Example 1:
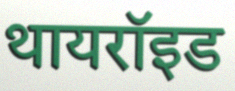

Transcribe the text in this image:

थायरॉइड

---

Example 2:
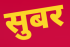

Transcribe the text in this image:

सुबर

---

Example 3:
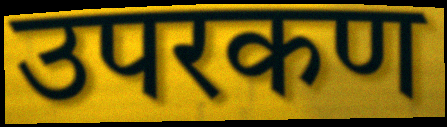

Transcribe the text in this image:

उपरकण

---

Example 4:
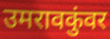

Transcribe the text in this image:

उमरावकुंवर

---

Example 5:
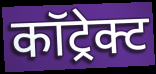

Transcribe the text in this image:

कॉट्रेक्ट